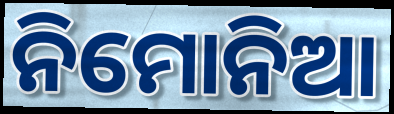
ନିମୋନିଆ